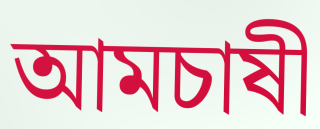
আমচাষী